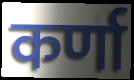
कर्णा